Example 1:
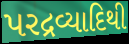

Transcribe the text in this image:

પરદ્રવ્યાદિથી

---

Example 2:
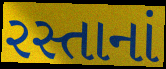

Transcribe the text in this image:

રસ્તાનાં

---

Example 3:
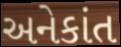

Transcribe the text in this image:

અનેકાંત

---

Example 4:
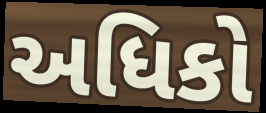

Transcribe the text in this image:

અધિકો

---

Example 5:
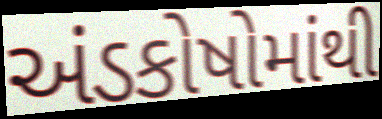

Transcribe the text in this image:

અંડકોષોમાંથી